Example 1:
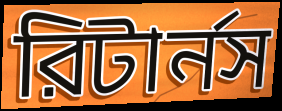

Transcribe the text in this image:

রিটার্নস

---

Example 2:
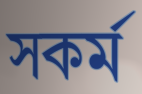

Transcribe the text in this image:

সকর্ম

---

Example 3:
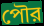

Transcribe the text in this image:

পৌর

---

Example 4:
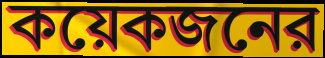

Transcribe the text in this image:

কয়েকজনের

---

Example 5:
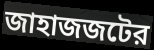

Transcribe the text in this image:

জাহাজজটের